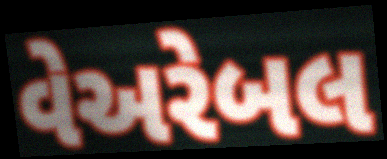
વેઅરેબલ